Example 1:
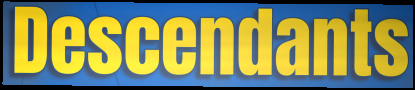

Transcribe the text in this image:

Descendants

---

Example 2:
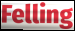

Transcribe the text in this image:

Felling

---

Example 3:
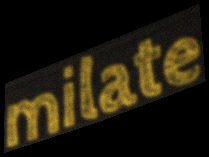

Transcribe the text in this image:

milate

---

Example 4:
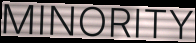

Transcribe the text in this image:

MINORITY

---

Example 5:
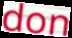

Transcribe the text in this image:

don